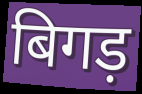
बिगड़